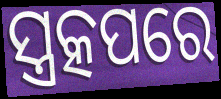
ସ୍ତ୍ରତ୍କପରେ